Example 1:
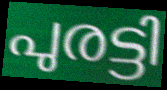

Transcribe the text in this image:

പുരട്ടി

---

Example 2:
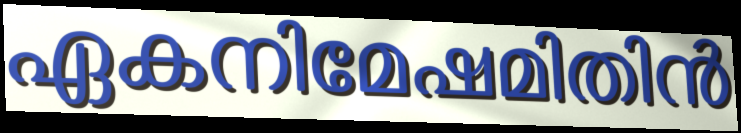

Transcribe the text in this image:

ഏകനിമേഷമിതിൻ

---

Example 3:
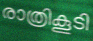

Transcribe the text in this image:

രാത്രികൂടി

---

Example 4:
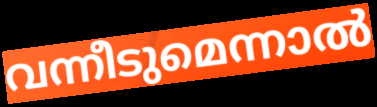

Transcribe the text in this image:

വന്നീടുമെന്നാൽ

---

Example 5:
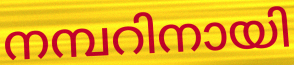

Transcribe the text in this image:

നമ്പറിനായി